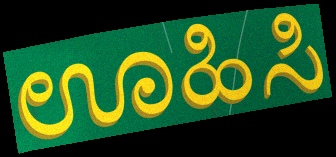
ಊಹಿಸಿ